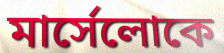
মার্সেলোকে